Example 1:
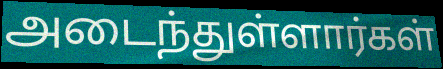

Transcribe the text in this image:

அடைந்துள்ளார்கள்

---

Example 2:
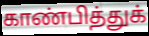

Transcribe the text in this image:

காண்பித்துக்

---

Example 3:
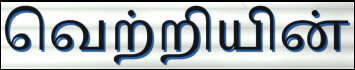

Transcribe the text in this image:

வெற்றியின்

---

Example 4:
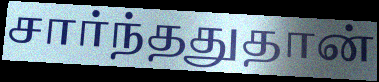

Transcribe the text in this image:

சார்ந்ததுதான்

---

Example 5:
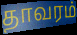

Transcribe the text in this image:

தாவரம்